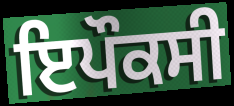
ਇਪੌਕਸੀ